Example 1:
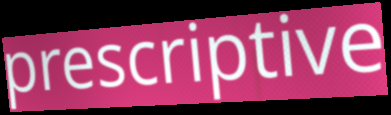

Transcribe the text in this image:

prescriptive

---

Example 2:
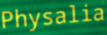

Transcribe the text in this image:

Physalia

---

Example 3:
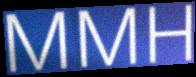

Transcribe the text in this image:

MMH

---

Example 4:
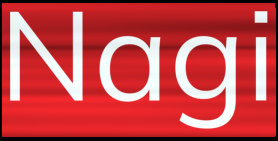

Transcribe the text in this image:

Nagi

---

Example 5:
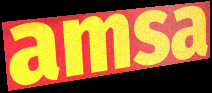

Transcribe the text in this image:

amsa